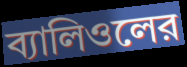
ব্যালিওলের